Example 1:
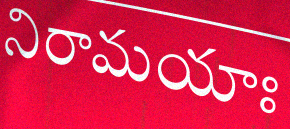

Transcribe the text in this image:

నిరామయాః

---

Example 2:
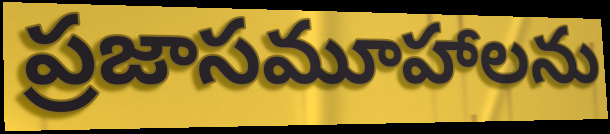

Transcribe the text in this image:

ప్రజాసమూహాలను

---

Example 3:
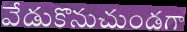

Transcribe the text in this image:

వేడుకొనుచుండగా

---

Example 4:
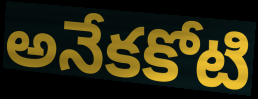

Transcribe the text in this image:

అనేకకోటి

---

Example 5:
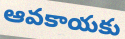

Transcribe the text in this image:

ఆవకాయకు